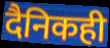
दैनिकही